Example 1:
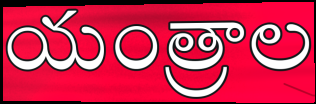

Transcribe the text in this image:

యంత్రాల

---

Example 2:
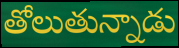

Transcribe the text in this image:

తోలుతున్నాడు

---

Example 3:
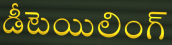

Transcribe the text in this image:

డీటెయిలింగ్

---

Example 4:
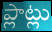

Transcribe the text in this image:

ప్లాట్లు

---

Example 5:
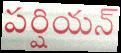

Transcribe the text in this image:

పర్షియన్